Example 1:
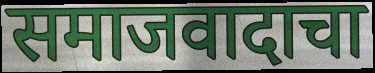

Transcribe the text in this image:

समाजवादाचा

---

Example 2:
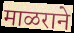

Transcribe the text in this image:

माळराने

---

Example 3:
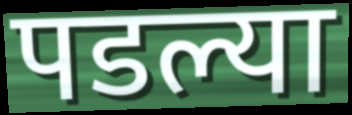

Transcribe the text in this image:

पडल्या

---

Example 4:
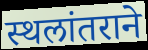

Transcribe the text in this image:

स्थलांतराने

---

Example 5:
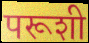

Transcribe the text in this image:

परूशी